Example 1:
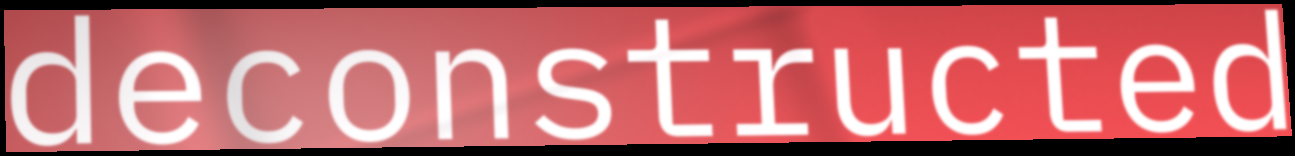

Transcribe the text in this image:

deconstructed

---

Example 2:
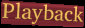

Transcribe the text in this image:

Playback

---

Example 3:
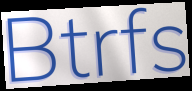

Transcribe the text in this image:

Btrfs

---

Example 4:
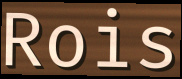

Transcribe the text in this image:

Rois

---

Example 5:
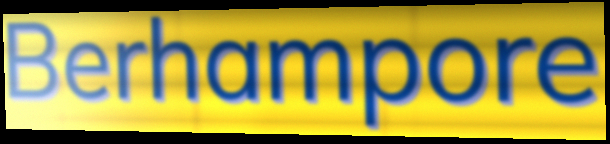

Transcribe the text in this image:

Berhampore